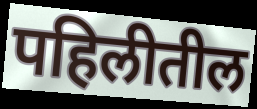
पहिलीतील